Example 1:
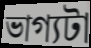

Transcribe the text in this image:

ভাগ্যটা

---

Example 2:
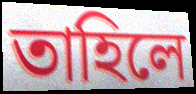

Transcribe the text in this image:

তাহিলে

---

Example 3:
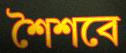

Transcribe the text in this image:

শৈশবে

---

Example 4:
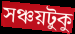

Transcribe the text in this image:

সঞ্চয়টুকু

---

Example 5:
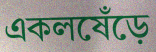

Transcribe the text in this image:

একলষেঁড়ে